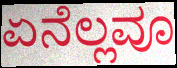
ಏನೆಲ್ಲವೂ